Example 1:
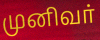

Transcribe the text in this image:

முனிவர்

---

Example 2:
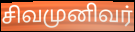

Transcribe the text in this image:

சிவமுனிவர்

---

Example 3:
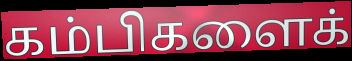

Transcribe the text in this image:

கம்பிகளைக்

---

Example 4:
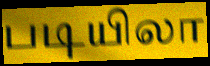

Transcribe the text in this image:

படியிலா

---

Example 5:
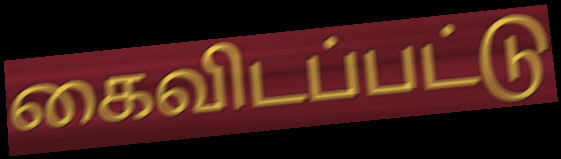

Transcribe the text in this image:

கைவிடப்பட்டு